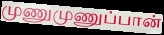
முணுமுணுப்பான்